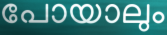
പോയാലും